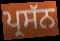
ਪ੍ਰਸੱਨ